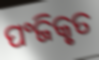
ପଂଜିକୃତ